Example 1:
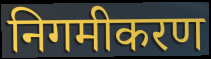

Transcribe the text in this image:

निगमीकरण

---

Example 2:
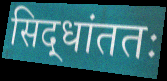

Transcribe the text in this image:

सिद्धांततः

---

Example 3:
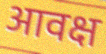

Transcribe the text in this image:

आवक्ष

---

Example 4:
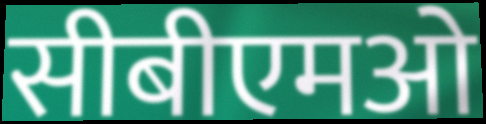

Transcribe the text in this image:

सीबीएमओ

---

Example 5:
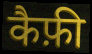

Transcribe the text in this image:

कैफ़ी